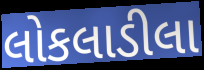
લોકલાડીલા